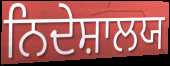
ਨਿਦੇਸ਼ਾਲਯ